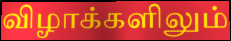
விழாக்களிலும்